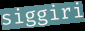
siggiri